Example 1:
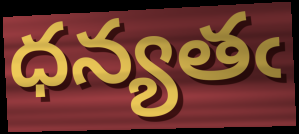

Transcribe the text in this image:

ధన్యతఁ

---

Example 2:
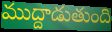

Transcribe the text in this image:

ముద్దాడుతుంది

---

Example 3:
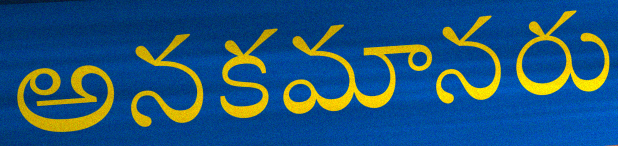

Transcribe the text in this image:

అనకమానరు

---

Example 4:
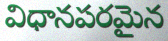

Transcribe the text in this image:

విధానపరమైన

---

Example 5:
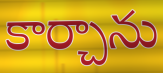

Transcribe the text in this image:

కార్చాను